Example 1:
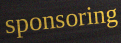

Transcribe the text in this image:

sponsoring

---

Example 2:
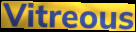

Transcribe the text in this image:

Vitreous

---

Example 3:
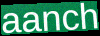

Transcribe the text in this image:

aanch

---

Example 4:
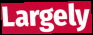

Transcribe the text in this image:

Largely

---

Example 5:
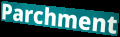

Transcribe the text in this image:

Parchment